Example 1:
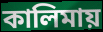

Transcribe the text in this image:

কালিমায়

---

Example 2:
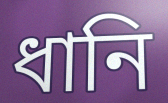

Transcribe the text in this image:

ধানি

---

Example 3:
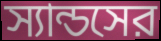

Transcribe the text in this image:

স্যান্ডসের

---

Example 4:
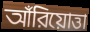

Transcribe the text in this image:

আঁরিয়োত্তা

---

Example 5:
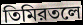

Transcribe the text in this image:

তিমিরতলে